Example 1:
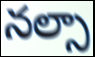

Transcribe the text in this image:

నల్సా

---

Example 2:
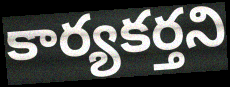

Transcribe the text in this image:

కార్యకర్తని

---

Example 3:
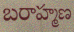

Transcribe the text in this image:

బరాహ్మణ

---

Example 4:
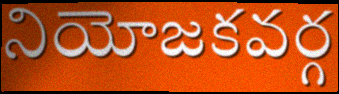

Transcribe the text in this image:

నియోజకవర్గ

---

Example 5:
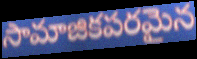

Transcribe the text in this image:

సామాజికపరమైన